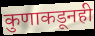
कुणाकडूनही